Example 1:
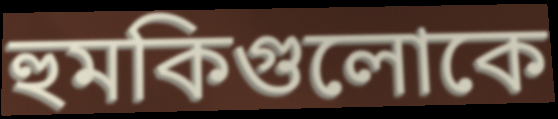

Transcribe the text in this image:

হুমকিগুলোকে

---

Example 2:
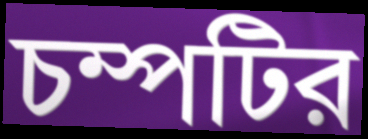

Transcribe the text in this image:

চম্পটির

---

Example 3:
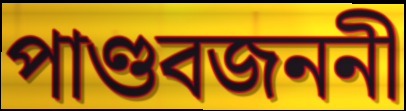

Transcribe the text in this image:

পাণ্ডবজননী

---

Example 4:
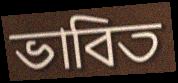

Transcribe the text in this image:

ভাবিত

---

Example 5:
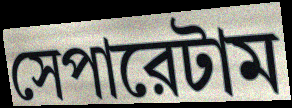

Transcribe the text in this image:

সেপারেটাম